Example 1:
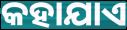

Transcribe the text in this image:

କହାଯାଏ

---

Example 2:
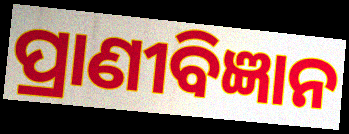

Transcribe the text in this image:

ପ୍ରାଣୀବିଜ୍ଞାନ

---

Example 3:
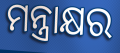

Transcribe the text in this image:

ମନ୍ତ୍ରାକ୍ଷର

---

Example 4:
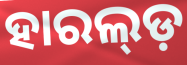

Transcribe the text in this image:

ହାରଲ୍ଡ଼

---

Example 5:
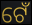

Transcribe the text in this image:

ଟେଁ